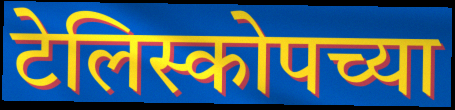
टेलिस्कोपच्या